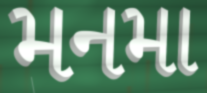
મનમા